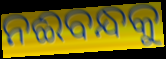
ନଈବନ୍ଧକୁ